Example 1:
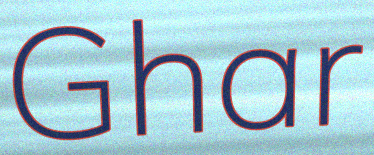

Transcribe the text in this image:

Ghar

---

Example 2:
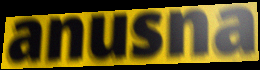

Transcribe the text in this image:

anusna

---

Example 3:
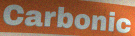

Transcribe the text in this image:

Carbonic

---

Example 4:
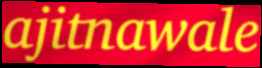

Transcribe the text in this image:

ajitnawale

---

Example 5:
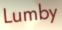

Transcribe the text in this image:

Lumby